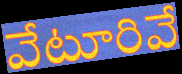
వేటూరివే